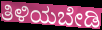
ತಿಳಿಯಬೇಡಿ